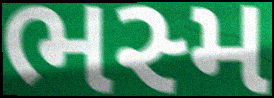
ભસ્મ